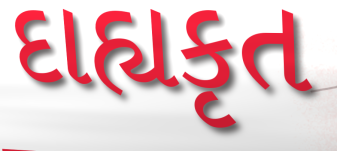
દાહ્યકૃત